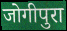
जोगीपुरा